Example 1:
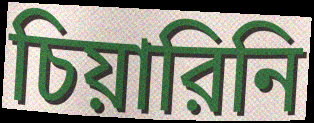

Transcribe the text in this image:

চিয়ারিনি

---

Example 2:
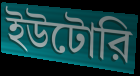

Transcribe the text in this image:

ইউটোরি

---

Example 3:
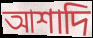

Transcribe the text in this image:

আশাদি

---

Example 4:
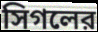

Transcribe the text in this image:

সিগলের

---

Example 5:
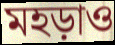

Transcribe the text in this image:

মহড়াও